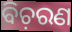
ବିଚ଼ରଣ